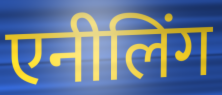
एनीलिंग